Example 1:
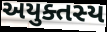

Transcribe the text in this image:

અયુક્તસ્ય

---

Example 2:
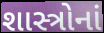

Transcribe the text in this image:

શાસ્ત્રોનાં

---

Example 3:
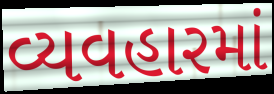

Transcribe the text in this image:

વ્યવહારમાં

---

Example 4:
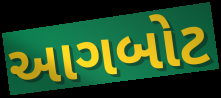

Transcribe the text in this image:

આગબોટ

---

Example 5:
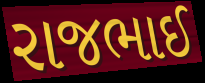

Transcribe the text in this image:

રાજભાઈ